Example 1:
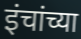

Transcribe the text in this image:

इंचांच्या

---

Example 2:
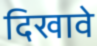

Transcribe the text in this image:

दिखावे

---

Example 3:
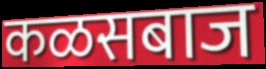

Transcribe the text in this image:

कळसबाज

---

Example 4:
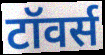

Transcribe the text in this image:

टॉवर्स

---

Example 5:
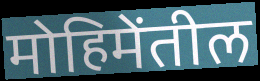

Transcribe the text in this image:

मोहिमेंतील